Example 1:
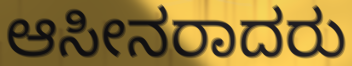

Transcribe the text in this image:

ಆಸೀನರಾದರು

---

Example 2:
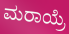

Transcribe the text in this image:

ಮರಾಯ್ರೆ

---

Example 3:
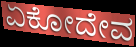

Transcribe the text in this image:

ಏಕೋದೇವ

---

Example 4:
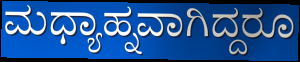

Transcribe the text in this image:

ಮಧ್ಯಾಹ್ನವಾಗಿದ್ದರೂ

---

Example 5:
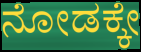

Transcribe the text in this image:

ನೋಡಕ್ಕೇ